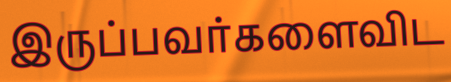
இருப்பவர்களைவிட